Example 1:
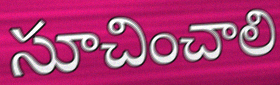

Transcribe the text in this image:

సూచించాలి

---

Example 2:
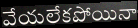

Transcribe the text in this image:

వేయలేకపోయినా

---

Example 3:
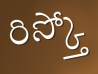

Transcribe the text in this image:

రిస్క్తో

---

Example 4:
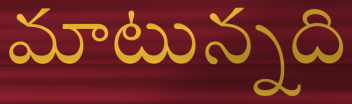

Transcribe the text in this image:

మాటున్నది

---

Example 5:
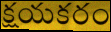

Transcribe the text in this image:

క్షయకరం